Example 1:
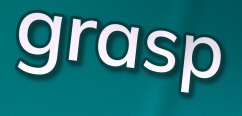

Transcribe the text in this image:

grasp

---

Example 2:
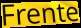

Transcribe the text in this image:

Frente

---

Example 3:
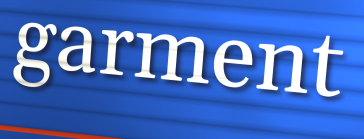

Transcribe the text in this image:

garment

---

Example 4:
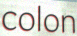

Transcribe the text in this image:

colon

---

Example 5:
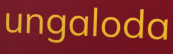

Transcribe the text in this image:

ungaloda